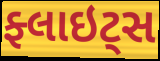
ફ્લાઇટ્સ